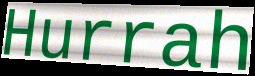
Hurrah